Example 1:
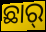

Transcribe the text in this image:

ଛାର୍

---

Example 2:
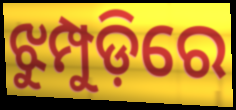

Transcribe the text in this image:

ଝୁମ୍ପୁଡ଼ିରେ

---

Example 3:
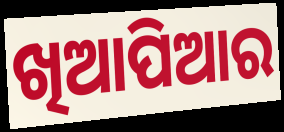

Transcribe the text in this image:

ଖିଆପିଆର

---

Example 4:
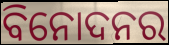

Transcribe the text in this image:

ବିନୋଦନର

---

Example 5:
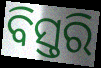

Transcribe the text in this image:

ବିସ୍ତରି